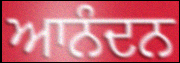
ਆਨੰਦਨ